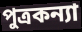
পুত্রকন্যা